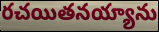
రచయితనయ్యాను